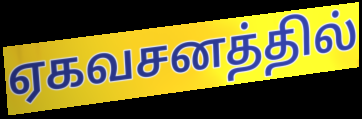
ஏகவசனத்தில்